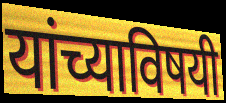
यांच्याविषयी